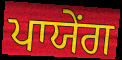
ਪਾਯੇਂਗ